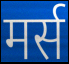
मर्स